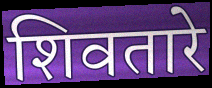
शिवतारे